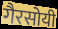
गैरसोयी